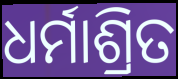
ଧର୍ମାଶ୍ରିତ